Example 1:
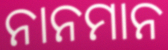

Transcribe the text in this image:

ନାନମାନ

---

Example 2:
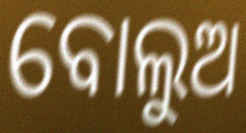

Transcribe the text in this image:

ବୋଲୁଅ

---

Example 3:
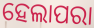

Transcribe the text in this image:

ହେଲାପରା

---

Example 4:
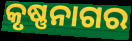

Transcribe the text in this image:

କୃଷ୍ଣନାଗର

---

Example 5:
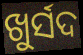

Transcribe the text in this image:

ଖୁର୍ସଦ